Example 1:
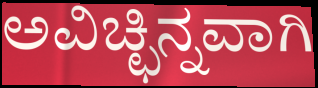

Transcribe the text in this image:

ಅವಿಚ್ಛಿನ್ನವಾಗಿ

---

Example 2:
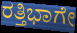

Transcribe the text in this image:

ರತ್ತಿಭಾಗೇ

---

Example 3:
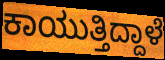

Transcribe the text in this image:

ಕಾಯುತ್ತಿದ್ದಾಳೆ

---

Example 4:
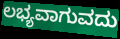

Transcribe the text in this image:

ಲಭ್ಯವಾಗುವದು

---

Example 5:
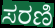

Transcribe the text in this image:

ಸರಣಿ